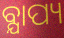
ବ୍ଯାପ୍ୟ